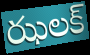
ఝలక్